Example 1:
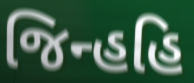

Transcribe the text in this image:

જિન્હહિ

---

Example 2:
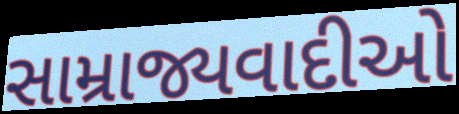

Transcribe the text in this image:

સામ્રાજ્યવાદીઓ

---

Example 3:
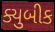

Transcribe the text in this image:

ક્યુબીક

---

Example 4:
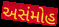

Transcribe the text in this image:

અસંમોહ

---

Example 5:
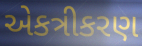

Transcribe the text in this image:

એકત્રીકરણ